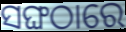
ସଙ୍ଘଠାରେ